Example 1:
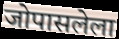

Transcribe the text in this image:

जोपासलेला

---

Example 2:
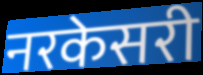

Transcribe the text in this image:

नरकेसरी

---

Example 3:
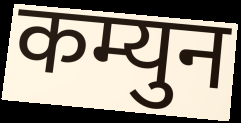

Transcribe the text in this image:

कम्युन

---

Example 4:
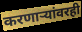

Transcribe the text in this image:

करणाऱ्यांवरही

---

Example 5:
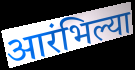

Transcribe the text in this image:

आरंभिल्या